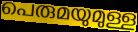
പെരുമയുമുള്ള